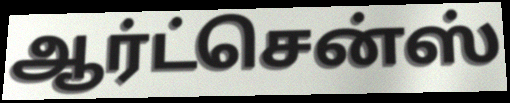
ஆர்ட்சென்ஸ்